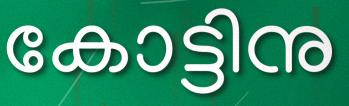
കോട്ടിനു